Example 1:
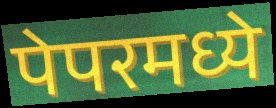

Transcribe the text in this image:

पेपरमध्ये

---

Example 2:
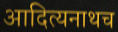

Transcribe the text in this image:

आदित्यनाथच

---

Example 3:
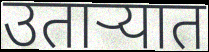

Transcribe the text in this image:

उताऱ्यात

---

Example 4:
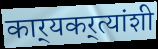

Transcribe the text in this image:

कार्यकर्त्यांशी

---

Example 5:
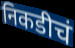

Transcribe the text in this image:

निकडीचं